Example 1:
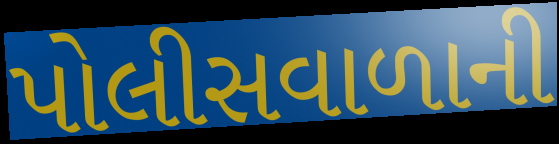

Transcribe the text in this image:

પોલીસવાળાની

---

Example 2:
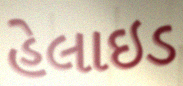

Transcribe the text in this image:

હેલાઇડ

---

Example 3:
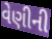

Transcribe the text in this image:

વેણીની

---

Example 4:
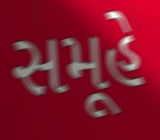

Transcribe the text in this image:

સમૂહે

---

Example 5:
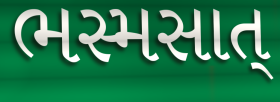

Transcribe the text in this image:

ભસ્મસાત્